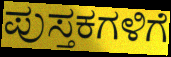
ಪುಸ್ತಕಗಳಿಗೆ